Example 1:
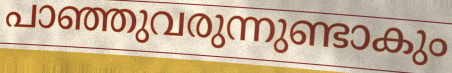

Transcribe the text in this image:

പാഞ്ഞുവരുന്നുണ്ടാകും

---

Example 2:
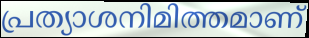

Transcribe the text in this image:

പ്രത്യാശനിമിത്തമാണ്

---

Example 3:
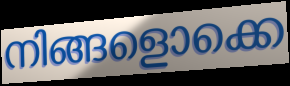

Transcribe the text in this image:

നിങ്ങളൊക്കെ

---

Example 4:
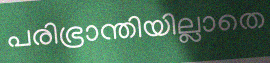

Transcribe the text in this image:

പരിഭ്രാന്തിയില്ലാതെ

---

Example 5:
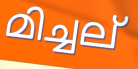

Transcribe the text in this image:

മിച്ചല്